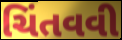
ચિંતવવી